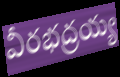
వీరభద్రయ్య